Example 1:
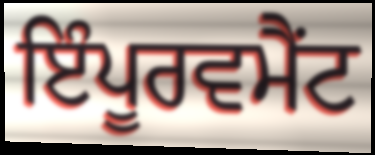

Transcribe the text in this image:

ਇੰਪੂਰਵਮੈਂਟ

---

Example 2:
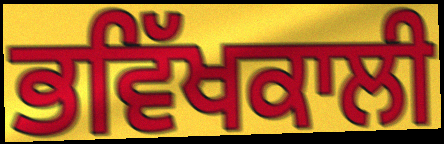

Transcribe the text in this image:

ਭਵਿੱਖਕਾਲੀ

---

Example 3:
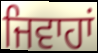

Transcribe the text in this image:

ਜਿਵਾਹਾਂ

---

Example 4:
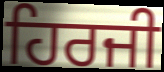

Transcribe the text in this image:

ਹਿਰਜੀ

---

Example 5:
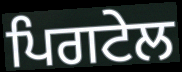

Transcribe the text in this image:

ਪਿਗਟੇਲ